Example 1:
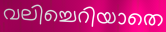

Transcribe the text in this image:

വലിച്ചെറിയാതെ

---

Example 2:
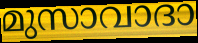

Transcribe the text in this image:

മുസാവാദാ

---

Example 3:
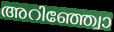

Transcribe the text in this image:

അറിഞ്ഞ്വോ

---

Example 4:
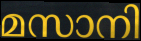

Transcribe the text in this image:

മസാനി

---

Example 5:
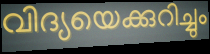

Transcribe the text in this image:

വിദ്യയെക്കുറിച്ചും